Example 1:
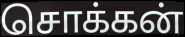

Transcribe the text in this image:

சொக்கன்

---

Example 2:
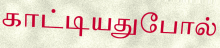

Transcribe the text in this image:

காட்டியதுபோல்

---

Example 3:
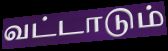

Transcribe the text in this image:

வட்டாடும்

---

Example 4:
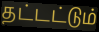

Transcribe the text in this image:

தட்டட்டும்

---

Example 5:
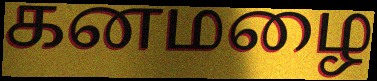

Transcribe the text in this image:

கனமழை